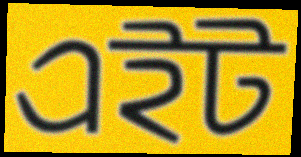
এইট